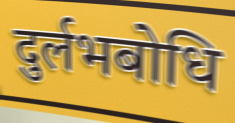
दुर्लभबोधि